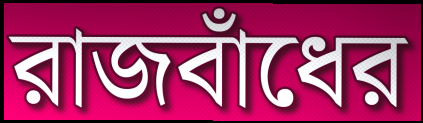
রাজবাঁধের